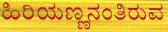
ಹಿರಿಯಣ್ಣನಂತಿರುವ